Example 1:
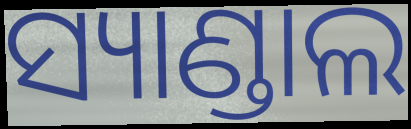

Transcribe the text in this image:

ସ୍ୟାଣ୍ଡାଲ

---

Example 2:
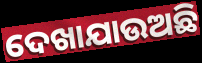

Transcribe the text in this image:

ଦେଖାଯାଉଅଛି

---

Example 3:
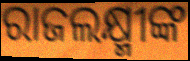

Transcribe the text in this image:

ରାଜଲକ୍ଷ୍ମୀଙ୍କ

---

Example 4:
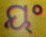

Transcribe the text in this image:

ୟଂ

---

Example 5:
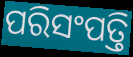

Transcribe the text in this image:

ପରିସଂପତ୍ତି